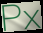
Px